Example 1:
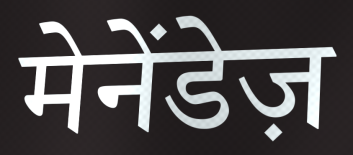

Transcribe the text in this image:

मेनेंडेज़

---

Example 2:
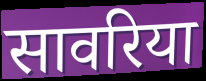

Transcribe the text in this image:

सावरिया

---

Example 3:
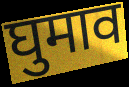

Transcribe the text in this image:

घुमाव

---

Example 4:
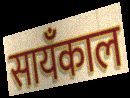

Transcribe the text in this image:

सायँकाल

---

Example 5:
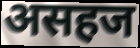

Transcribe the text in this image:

असहज